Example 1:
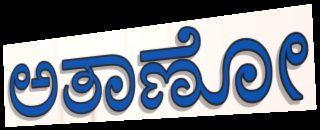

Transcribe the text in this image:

ಅತಾಣೋ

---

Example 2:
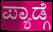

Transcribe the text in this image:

ಪ್ಯಾಡ್ಗೆ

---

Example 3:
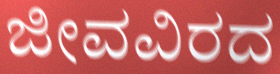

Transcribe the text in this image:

ಜೀವವಿರದ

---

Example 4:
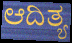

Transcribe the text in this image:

ಆದಿತ್ಯ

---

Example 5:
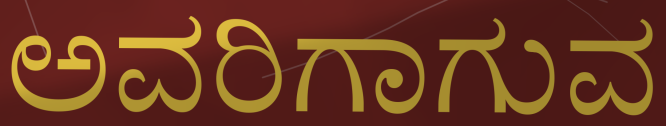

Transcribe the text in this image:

ಅವರಿಗಾಗುವ